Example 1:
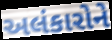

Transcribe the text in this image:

અલંકારોને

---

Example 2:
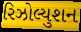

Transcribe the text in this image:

રિઝોલ્યુશન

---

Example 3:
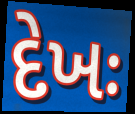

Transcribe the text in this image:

દેખઃ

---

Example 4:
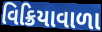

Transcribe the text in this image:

વિક્રિયાવાળા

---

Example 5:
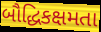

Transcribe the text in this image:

બૌદ્ધિકક્ષમતા